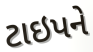
ટાઇપને